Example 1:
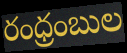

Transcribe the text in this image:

రంధ్రంబుల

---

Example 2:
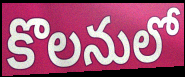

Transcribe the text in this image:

కొలనులో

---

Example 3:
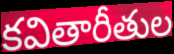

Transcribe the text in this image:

కవితారీతుల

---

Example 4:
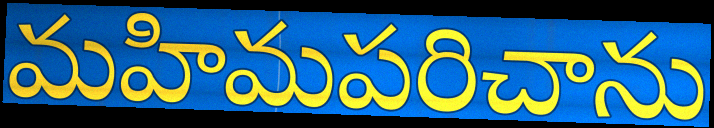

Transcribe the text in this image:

మహిమపరిచాను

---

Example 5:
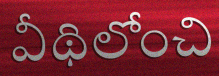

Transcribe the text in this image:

వీథిలోంచి